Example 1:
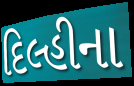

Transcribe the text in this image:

દિલ્હીના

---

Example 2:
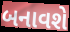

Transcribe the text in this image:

બનાવશે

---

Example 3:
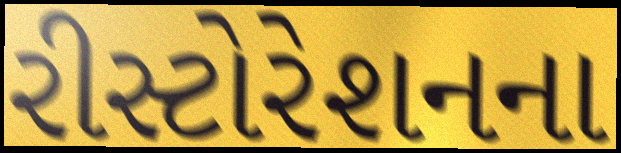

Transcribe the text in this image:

રીસ્ટોરેશનના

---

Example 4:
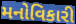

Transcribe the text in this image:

મનોવિકારી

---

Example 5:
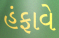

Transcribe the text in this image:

હંફાવે